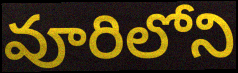
వూరిలోని